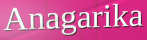
Anagarika